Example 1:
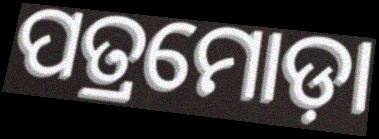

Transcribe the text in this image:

ପତ୍ରମୋଡ଼ା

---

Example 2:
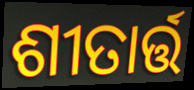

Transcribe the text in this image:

ଶୀତାର୍ତ୍ତ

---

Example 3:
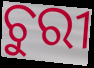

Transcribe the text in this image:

ଚୁରୀ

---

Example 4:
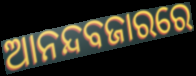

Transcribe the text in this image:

ଆନନ୍ଦବଜାରରେ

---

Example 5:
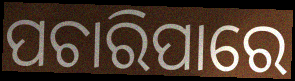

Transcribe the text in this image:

ପଚାରିପାରେ